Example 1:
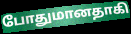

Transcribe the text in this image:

போதுமானதாகி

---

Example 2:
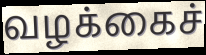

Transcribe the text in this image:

வழக்கைச்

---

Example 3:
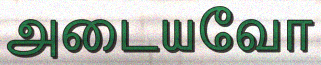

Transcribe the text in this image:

அடையவோ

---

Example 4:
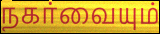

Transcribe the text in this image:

நகர்வையும்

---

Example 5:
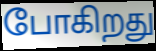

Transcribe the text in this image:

போகிறது